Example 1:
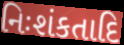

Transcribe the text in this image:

નિઃશંકતાદિ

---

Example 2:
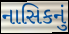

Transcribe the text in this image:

નાસિકનું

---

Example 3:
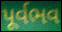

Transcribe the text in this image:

પૂર્વભવ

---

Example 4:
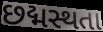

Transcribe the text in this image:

છદ્મસ્થતા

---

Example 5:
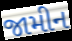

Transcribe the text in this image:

જામીન